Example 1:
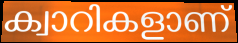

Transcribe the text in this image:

ക്വാറികളാണ്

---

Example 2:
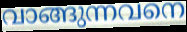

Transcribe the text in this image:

വാങ്ങുന്നവനെ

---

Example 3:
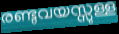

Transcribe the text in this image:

രണ്ടുവയസ്സുള്ള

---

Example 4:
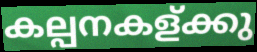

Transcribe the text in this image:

കല്പനകള്ക്കു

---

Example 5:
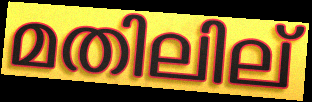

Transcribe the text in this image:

മതിലില്